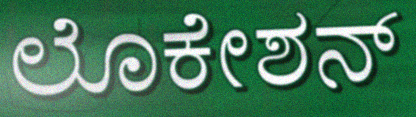
ಲೊಕೇಶನ್